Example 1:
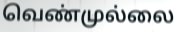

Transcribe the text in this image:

வெண்முல்லை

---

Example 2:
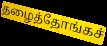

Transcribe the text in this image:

தழைத்தோங்கச்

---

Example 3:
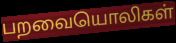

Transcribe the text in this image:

பறவையொலிகள்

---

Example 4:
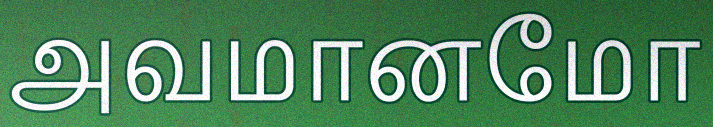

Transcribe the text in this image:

அவமானமோ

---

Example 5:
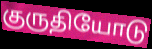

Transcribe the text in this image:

குருதியோடு